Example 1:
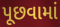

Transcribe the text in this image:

પૂછવામાં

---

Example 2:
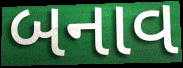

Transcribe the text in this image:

બનાવ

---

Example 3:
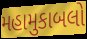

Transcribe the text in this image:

મહામુકાબલો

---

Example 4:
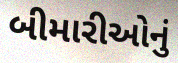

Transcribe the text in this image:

બીમારીઓનું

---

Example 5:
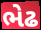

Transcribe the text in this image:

ભેઢ